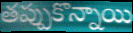
తప్పుకొన్నాయి